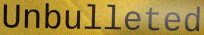
Unbulleted